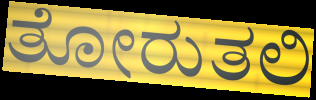
ತೋರುತಲಿ